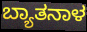
ಬ್ಯಾತನಾಳ